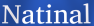
Natinal